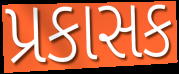
પ્રકાસક